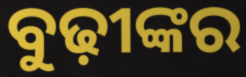
ବୁଢ଼ୀଙ୍କର